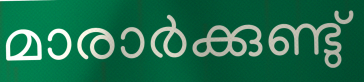
മാരാർക്കുണ്ടു്